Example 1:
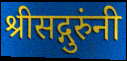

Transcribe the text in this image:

श्रीसद्गुरुंनी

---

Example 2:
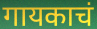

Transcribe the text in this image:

गायकाचं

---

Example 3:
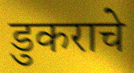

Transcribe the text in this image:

डुकराचे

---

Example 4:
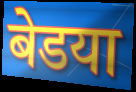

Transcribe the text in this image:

बेडया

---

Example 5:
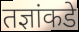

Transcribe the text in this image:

तज्ञांकडे